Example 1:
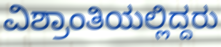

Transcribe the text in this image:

ವಿಶ್ರಾಂತಿಯಲ್ಲಿದ್ದರು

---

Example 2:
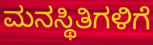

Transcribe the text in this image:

ಮನಸ್ಥಿತಿಗಳಿಗೆ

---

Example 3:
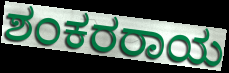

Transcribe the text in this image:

ಶಂಕರರಾಯ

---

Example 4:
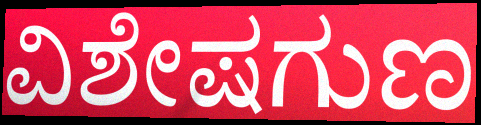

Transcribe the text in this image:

ವಿಶೇಷಗುಣ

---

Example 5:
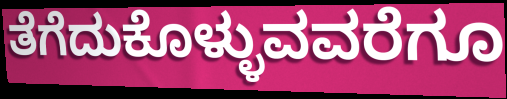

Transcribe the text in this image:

ತೆಗೆದುಕೊಳ್ಳುವವರೆಗೂ